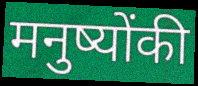
मनुष्योंकी